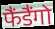
फैंडैंगो